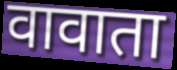
वावाता